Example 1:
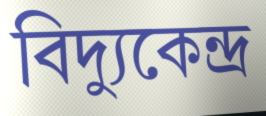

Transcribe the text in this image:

বিদ্যুকেন্দ্র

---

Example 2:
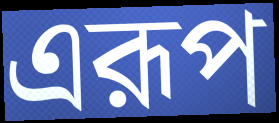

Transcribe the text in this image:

এরূপ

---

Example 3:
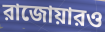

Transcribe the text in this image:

রাজোয়ারও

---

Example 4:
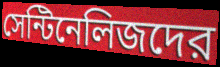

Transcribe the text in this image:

সেন্টিনেলিজদের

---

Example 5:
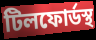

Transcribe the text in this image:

টিলফোর্ডস্থ